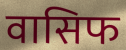
वासिफ